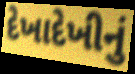
દેખાદેખીનું